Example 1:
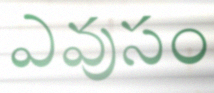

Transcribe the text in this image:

ఎవుసం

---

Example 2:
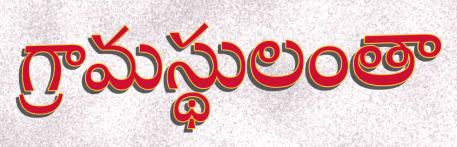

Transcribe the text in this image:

గ్రామస్థులంతా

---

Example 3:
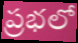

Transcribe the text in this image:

ప్రభలో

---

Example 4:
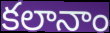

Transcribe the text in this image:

కలానాం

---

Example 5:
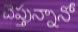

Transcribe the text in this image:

చెప్తున్నానో